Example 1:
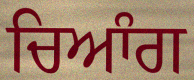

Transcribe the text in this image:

ਚਿਆੰਗ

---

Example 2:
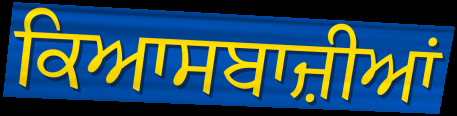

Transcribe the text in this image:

ਕਿਆਸਬਾਜ਼ੀਆਂ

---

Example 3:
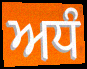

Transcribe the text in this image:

ਅਧੰ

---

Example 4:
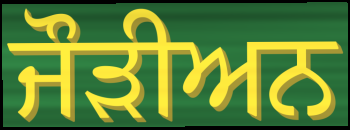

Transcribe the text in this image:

ਜੌੜੀਅਨ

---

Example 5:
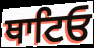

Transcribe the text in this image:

ਥਾਟਿਓ